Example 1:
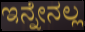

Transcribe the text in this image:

ಇನ್ನೇನಲ್ಲ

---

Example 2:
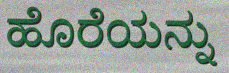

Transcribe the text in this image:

ಹೊರೆಯನ್ನು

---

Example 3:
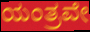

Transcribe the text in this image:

ಯಂತ್ರವೇ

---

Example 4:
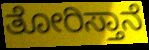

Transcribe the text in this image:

ತೋರಿಸ್ತಾನೆ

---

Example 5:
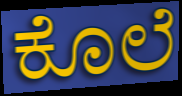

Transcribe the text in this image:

ಕೊಲೆ